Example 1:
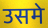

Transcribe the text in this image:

उसमे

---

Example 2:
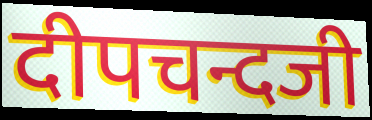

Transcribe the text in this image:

दीपचन्दजी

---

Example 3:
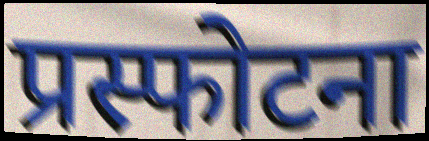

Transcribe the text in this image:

प्रस्फोटना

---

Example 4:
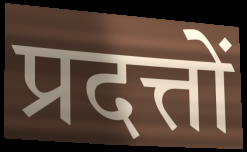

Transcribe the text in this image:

प्रदत्तों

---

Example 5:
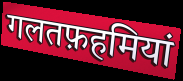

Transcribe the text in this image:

गलतफ़हमियां